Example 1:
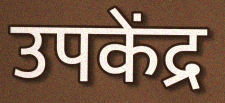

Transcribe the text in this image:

उपकेंद्र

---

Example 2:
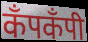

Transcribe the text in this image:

कँपकँपी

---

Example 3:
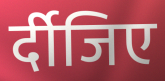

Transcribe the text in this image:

र्दीजिए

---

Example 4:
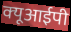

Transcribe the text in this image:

क्यूआईपी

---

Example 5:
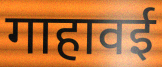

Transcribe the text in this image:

गाहावई